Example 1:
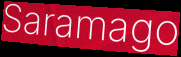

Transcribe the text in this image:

Saramago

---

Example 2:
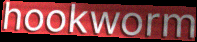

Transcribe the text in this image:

hookworm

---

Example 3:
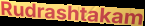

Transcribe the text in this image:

Rudrashtakam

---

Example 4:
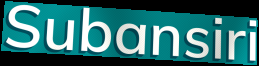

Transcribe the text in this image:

Subansiri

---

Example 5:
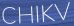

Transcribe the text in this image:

CHIKV